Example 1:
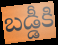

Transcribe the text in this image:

బడ్డీకి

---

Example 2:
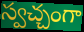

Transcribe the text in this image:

స్వచ్చంగా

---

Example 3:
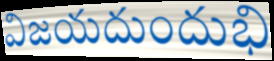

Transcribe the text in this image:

విజయదుందుభి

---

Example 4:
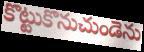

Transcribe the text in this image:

కొట్టుకొనుచుండెను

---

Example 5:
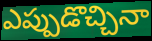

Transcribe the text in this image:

ఎప్పుడొచ్చినా